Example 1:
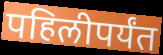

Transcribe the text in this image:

पहिलीपर्यंत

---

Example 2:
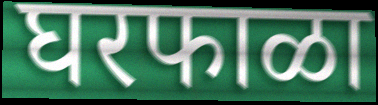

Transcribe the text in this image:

घरफाळा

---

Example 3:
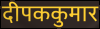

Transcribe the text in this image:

दीपककुमार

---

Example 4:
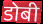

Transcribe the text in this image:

डोबी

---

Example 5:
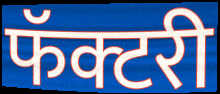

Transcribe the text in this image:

फॅक्‍टरी